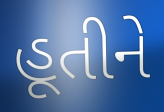
હૂતીને